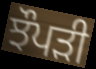
ਝੌਪੜੀ